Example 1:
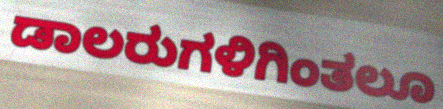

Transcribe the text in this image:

ಡಾಲರುಗಳಿಗಿಂತಲೂ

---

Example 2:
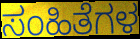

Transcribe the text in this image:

ಸಂಹಿತೆಗಳ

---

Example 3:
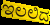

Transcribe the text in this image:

ಇಲಲಿದ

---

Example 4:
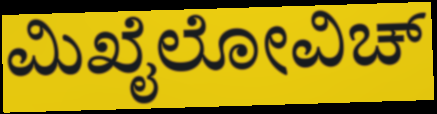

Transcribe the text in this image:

ಮಿಖೈಲೋವಿಚ್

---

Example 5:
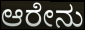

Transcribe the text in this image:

ಆರೇನು